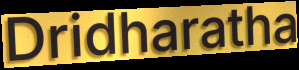
Dridharatha